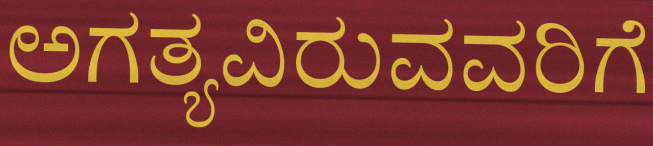
ಅಗತ್ಯವಿರುವವರಿಗೆ